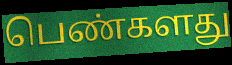
பெண்களது